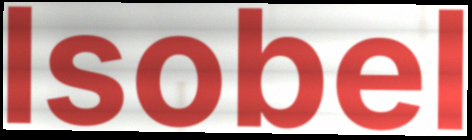
Isobel